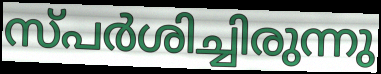
സ്പർശിച്ചിരുന്നു